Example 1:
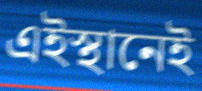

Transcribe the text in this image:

এইস্থানেই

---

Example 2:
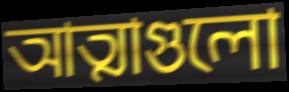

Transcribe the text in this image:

আত্মাগুলো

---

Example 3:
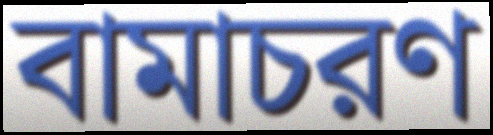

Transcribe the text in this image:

বামাচরণ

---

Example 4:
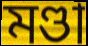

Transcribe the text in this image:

মণ্ডা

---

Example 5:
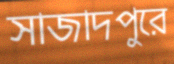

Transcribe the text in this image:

সাজাদপুরে